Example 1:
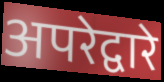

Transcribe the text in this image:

अपरेद्वारे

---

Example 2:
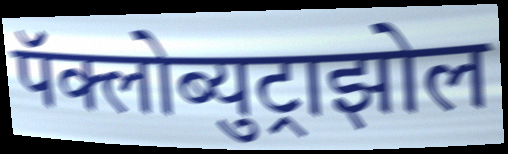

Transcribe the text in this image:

पॅक्लोब्युट्राझोल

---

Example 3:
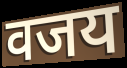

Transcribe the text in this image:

वजय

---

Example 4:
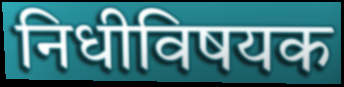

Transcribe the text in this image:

निधीविषयक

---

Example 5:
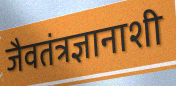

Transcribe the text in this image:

जैवतंत्रज्ञानाशी